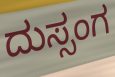
ದುಸ್ಸಂಗ